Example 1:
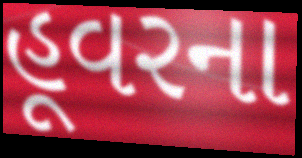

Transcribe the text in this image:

હૂવરના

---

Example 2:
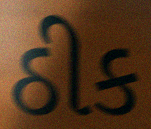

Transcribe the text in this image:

ઠીક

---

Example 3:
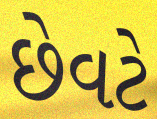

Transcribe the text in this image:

છેવટે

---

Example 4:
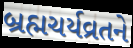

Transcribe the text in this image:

બ્રહ્મચર્યવ્રતને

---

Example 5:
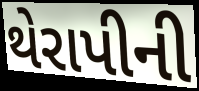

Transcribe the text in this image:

થેરાપીની